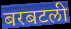
बरबटली